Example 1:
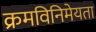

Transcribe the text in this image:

क्रमविनिमेयता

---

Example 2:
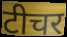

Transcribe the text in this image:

टीचर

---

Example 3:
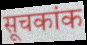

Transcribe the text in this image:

सूचकांक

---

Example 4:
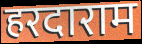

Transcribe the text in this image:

हरदाराम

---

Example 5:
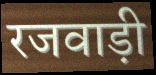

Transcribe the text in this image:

रजवाड़ी